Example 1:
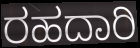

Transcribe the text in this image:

ರಹದಾರಿ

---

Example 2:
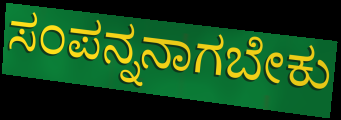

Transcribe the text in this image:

ಸಂಪನ್ನನಾಗಬೇಕು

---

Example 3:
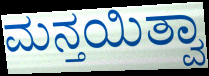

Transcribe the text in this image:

ಮನ್ತಯಿತ್ವಾ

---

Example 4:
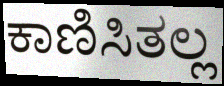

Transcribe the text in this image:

ಕಾಣಿಸಿತಲ್ಲ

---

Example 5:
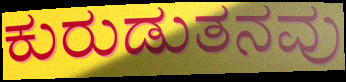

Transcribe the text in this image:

ಕುರುಡುತನವು